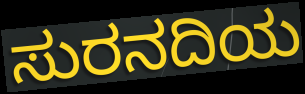
ಸುರನದಿಯ